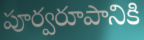
పూర్వరూపానికి